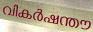
വികർഷന്തൗ